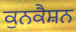
ਕੁਨਕੈਸ਼ਨ